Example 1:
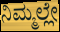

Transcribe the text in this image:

ನಿಮ್ಮಲ್ಲೇ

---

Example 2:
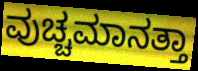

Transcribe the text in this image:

ವುಚ್ಚಮಾನತ್ತಾ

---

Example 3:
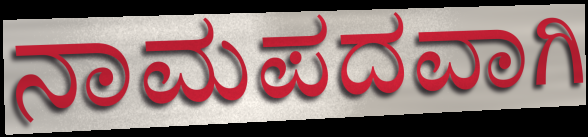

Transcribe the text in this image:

ನಾಮಪದವಾಗಿ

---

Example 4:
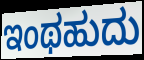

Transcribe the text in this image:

ಇಂಥಹುದು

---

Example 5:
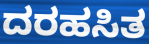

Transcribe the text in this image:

ದರಹಸಿತ